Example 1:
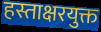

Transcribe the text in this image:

हस्ताक्षरयुक्त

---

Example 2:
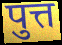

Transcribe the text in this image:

पुत्त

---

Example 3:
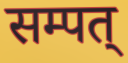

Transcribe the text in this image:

सम्पत्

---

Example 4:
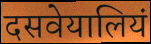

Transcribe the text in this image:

दसवेयालियं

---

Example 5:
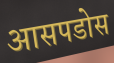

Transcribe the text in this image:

आसपडोस